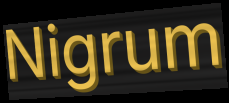
Nigrum